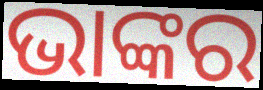
ଭାଙ୍କର